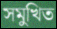
সমুখিত